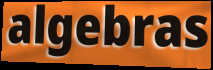
algebras